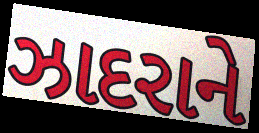
ઝાદરાને